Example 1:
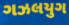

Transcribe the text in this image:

ગઝલયુગ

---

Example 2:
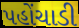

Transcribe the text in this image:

પહોંચાડી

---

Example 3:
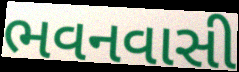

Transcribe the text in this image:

ભવનવાસી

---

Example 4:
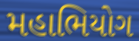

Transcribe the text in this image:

મહાભિયોગ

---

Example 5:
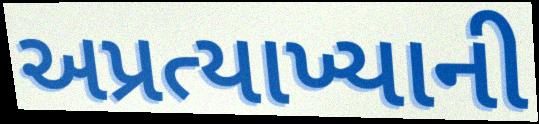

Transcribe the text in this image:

અપ્રત્યાખ્યાની